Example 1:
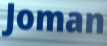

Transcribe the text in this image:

Joman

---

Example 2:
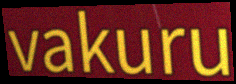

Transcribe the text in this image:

vakuru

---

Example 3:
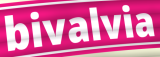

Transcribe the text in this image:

bivalvia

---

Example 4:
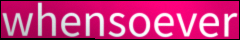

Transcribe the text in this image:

whensoever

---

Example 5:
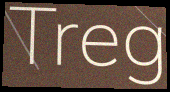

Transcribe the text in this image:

Treg